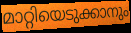
മാറ്റിയെടുക്കാനും